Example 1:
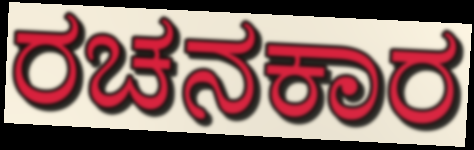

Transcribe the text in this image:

ರಚನಕಾರ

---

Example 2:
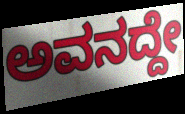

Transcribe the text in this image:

ಅವನದ್ದೇ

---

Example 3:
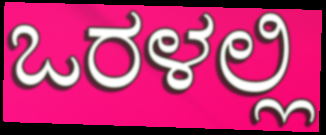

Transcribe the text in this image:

ಒರಳಲ್ಲಿ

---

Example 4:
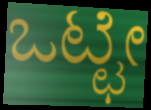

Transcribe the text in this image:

ಒಟ್ಟೇ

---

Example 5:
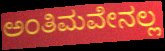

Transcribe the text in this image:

ಅಂತಿಮವೇನಲ್ಲ